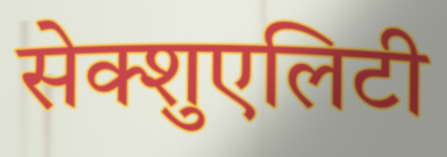
सेक्शुएलिटी